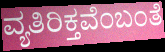
ವ್ಯತಿರಿಕ್ತವೆಂಬಂತೆ